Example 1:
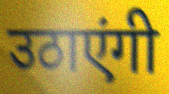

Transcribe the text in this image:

उठाएंगी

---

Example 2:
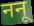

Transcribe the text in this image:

ननू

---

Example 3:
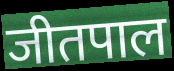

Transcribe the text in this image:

जीतपाल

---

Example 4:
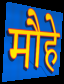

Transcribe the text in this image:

मौहे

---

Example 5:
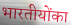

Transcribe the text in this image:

भारतीयोंका